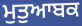
ਮੁਤੁਆਬਕ